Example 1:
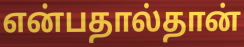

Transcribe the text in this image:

என்பதால்தான்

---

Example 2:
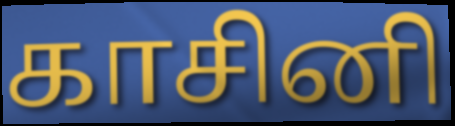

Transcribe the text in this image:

காசினி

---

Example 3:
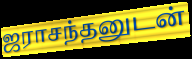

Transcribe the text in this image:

ஜராசந்தனுடன்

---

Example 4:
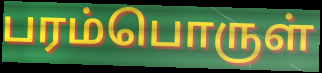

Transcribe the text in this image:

பரம்பொருள்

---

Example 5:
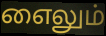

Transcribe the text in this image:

எைலும்